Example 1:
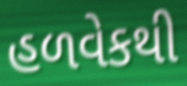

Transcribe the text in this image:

હળવેકથી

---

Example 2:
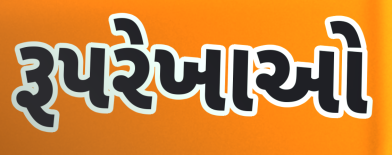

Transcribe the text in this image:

રૂપરેખાઓ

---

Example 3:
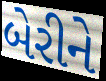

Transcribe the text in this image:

બેરીને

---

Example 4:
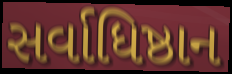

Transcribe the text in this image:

સર્વાધિષ્ઠાન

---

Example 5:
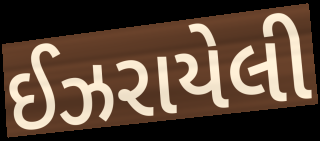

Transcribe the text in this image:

ઈઝરાયેલી